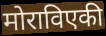
मोराविएकी